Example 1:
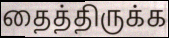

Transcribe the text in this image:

தைத்திருக்க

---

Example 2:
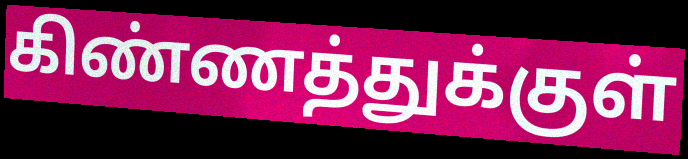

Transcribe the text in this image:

கிண்ணத்துக்குள்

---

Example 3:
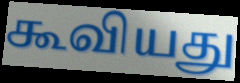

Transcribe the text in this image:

கூவியது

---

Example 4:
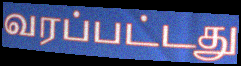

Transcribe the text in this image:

வரப்பட்டது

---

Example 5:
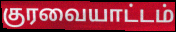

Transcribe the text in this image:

குரவையாட்டம்